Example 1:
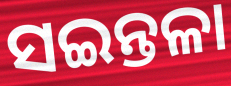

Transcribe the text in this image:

ସଇନ୍ତଳା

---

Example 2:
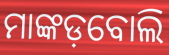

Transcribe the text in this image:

ମାଙ୍କଡ଼ବୋଲି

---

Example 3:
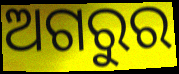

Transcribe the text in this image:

ଅଗରୁର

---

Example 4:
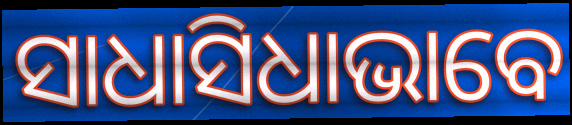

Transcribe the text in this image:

ସାଧାସିଧାଭାବେ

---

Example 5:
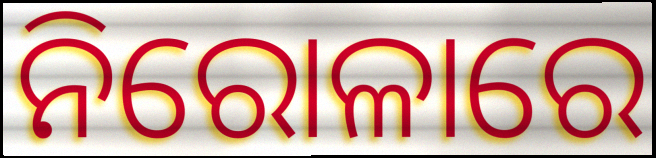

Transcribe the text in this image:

ନିରୋଳାରେ